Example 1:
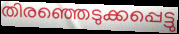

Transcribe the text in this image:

തിരഞ്ഞെടുക്കപ്പെട്ടു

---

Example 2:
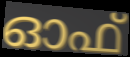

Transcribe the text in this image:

ഓഫ്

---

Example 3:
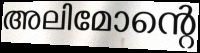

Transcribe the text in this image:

അലിമോന്റെ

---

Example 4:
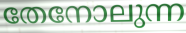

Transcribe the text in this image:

തേനോലുന്ന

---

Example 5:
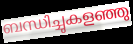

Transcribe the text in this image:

ബന്ധിച്ചുകളഞ്ഞു